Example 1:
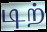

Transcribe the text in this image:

டிற்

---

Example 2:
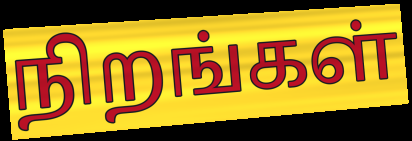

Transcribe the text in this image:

நிறங்கள்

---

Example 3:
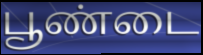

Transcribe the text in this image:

பூண்டை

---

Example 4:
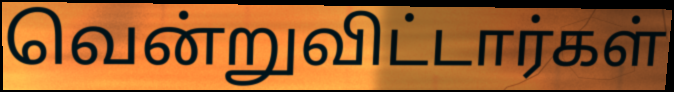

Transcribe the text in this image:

வென்றுவிட்டார்கள்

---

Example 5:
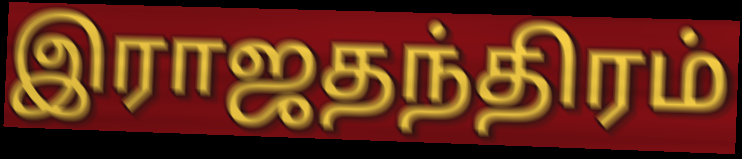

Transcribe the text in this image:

இராஜதந்திரம்